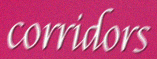
corridors